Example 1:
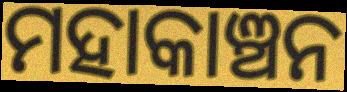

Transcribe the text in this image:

ମହାକାଞ୍ଚନ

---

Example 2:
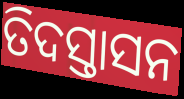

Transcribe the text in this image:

ତିଦସ୍ତାସନ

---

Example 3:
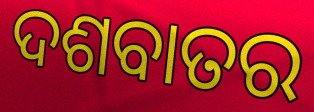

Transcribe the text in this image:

ଦଶବାତର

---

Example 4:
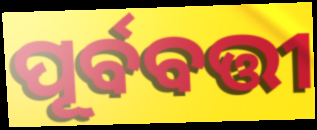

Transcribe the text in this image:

ପୂର୍ବବତ୍ତୀ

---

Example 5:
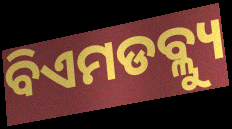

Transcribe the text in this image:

ବିଏମଡବ୍ଲ୍ୟୁ